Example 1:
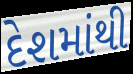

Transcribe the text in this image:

દેશમાંથી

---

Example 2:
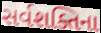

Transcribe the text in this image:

સર્વશક્તિના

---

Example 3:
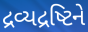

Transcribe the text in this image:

દ્રવ્યદ્રષ્ટિને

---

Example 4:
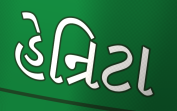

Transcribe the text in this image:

હેન્રિટા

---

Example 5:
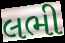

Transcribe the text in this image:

લભી